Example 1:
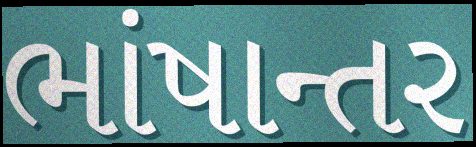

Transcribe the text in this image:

ભાંષાન્તર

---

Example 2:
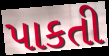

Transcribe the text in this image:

પાકતી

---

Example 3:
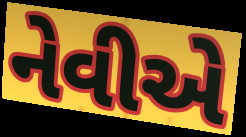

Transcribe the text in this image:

નેવીએ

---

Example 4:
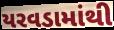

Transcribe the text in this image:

યરવડામાંથી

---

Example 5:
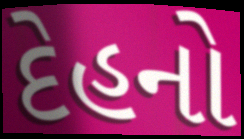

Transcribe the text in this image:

દેહનો